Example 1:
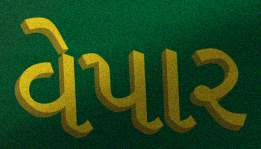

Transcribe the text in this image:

વેપાર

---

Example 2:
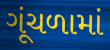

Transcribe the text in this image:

ગૂંચળામાં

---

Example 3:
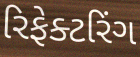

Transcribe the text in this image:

રિફેક્ટરિંગ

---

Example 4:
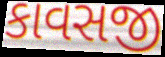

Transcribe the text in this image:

કાવસજી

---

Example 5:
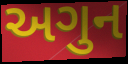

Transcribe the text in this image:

અગુન